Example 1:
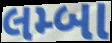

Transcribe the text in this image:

લમ્બા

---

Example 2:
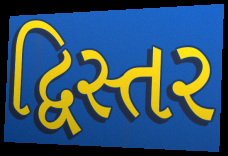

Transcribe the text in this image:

દ્વિસ્તર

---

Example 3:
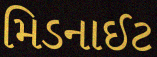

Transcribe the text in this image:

મિડનાઈટ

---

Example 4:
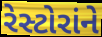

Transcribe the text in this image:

રેસ્ટોરાંને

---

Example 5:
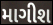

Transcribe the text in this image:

માગીશ